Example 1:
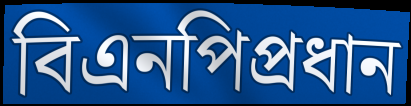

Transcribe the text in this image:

বিএনপিপ্রধান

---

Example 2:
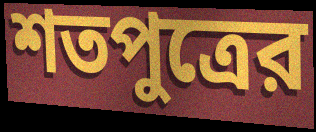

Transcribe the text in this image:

শতপুত্রের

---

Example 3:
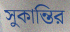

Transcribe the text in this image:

সুকান্তির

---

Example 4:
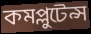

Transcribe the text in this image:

কমপ্লুটেন্স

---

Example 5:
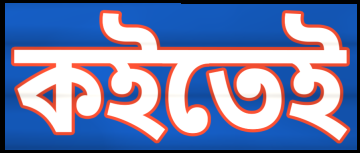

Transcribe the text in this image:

কইতেই